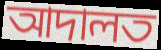
আদালত